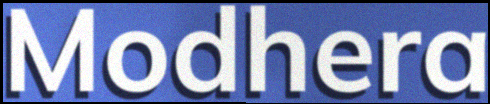
Modhera